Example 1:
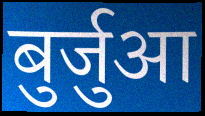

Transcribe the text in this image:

बुर्जुआ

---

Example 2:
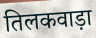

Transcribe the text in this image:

तिलकवाड़ा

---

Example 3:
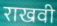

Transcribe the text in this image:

राखवी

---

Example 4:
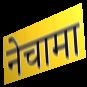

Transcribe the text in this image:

नेचामा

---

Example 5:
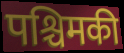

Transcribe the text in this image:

पश्चिमकी